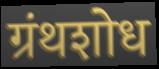
ग्रंथशोध